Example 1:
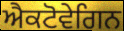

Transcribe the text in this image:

ਐਕਟੋਵੇਗਿਨ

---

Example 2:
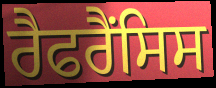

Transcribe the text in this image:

ਰੈਫਰੈਂਸਿਸ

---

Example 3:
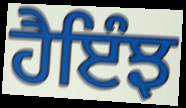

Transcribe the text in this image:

ਹੈਇੰਝ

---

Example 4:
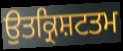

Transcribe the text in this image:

ਉਤਕ੍ਰਿਸ਼ਟਤਮ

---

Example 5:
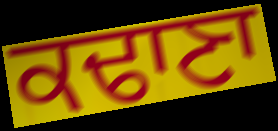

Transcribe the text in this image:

ਕਢਾਣਾ